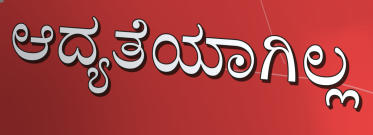
ಆದ್ಯತೆಯಾಗಿಲ್ಲ